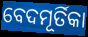
ବେଦମୂର୍ତିକା